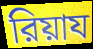
রিয়ায